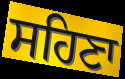
ਸਹਿਣਾ